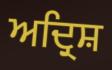
ਅਦ੍ਰਿਸ਼